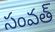
సంవత్